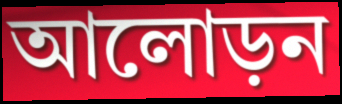
আলোড়ন